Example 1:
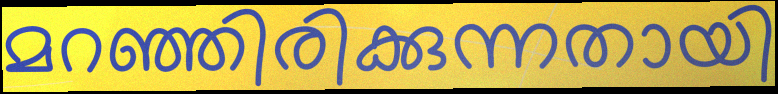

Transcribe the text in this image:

മറഞ്ഞിരിക്കുന്നതായി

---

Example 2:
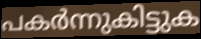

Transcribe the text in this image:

പകർന്നുകിട്ടുക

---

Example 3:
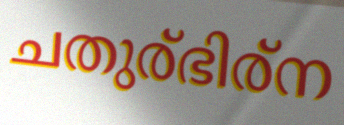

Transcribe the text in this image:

ചതുര്ഭിര്ന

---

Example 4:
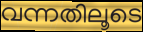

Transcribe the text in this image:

വന്നതിലൂടെ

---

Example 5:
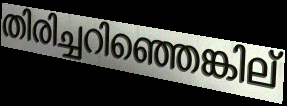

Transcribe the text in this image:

തിരിച്ചറിഞ്ഞെങ്കില്